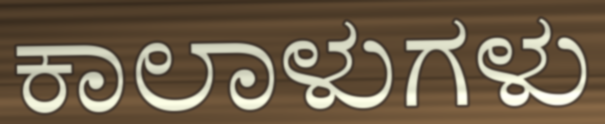
ಕಾಲಾಳುಗಳು